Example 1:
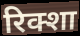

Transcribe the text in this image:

रिक्शा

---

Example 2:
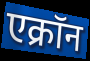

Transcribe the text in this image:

एक्रॉन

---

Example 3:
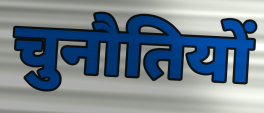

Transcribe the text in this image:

चुनौतियों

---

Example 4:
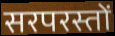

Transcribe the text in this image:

सरपरस्तों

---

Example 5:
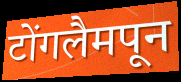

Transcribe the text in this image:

टोंगलैमपून